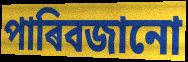
পাৰিবজানো